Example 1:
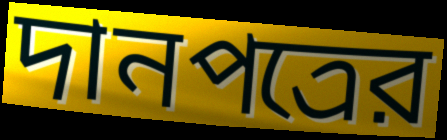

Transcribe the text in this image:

দানপত্রের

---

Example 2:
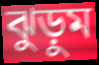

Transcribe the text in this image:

ঝুড়ুম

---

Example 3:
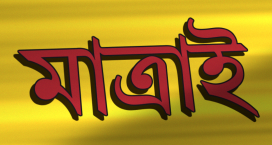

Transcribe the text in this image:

মাত্রাই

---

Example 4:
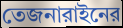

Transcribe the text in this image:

তেজনারাইনের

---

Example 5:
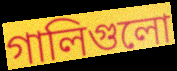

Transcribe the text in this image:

গালিগুলো